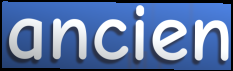
ancien